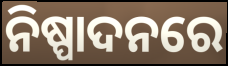
ନିଷ୍ପାଦନରେ